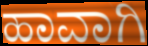
ಹಾವಾಗಿ